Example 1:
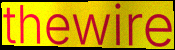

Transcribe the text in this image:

thewire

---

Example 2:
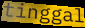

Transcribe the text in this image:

tinggal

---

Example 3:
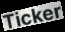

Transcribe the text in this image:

Ticker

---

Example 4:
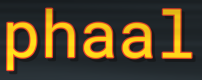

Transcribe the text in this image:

phaal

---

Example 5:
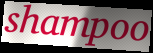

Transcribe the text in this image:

shampoo